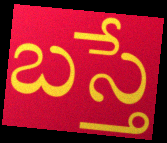
బస్తే